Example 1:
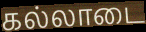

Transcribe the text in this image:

கல்லாடை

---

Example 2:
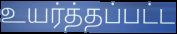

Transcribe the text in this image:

உயர்த்தப்பட்ட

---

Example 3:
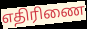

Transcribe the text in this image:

எதிரிணை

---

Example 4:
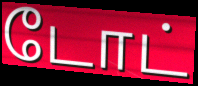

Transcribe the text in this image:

டோட்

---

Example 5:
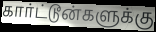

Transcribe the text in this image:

கார்ட்டூன்களுக்கு